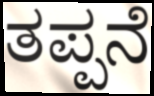
ತಪ್ಪನೆ